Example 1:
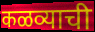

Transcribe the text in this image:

कळव्याची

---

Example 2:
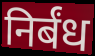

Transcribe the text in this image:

निर्बंध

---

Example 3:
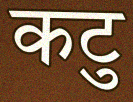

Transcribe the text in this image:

कटु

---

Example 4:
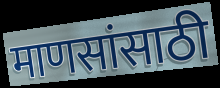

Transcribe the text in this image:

माणसांसाठी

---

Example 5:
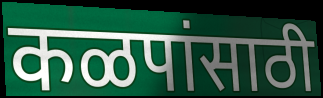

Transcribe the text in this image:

कळपांसाठी